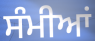
ਸੰਮੀਆਂ